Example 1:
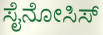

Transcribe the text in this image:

ಸೈನೋಸಿಸ್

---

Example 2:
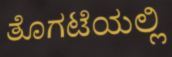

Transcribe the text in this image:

ತೊಗಟೆಯಲ್ಲಿ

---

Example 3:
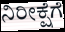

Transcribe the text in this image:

ನಿರೀಕ್ಷೆಗೆ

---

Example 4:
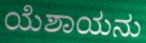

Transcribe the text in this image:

ಯೆಶಾಯನು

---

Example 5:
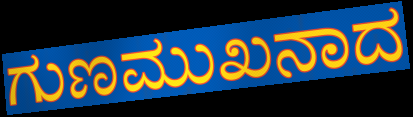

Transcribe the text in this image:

ಗುಣಮುಖನಾದ